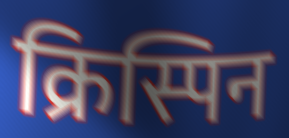
क्रिस्पिन